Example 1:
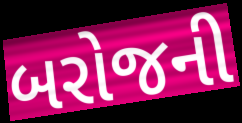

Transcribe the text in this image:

બરોજની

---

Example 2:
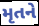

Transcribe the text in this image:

મૃતને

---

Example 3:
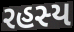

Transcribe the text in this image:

રહસ્ય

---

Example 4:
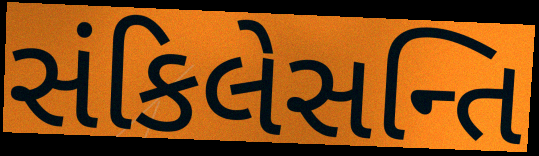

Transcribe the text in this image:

સંકિલેસન્તિ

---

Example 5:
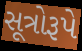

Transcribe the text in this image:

સૂત્રોરૂપે